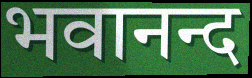
भवानन्द